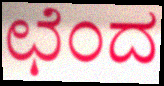
ಛೆಂದ